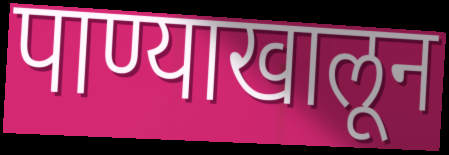
पाण्याखालून